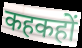
कहकहों